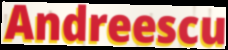
Andreescu